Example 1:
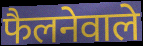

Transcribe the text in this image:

फैलनेवाले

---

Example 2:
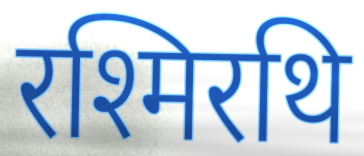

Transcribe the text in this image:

रश्मिरथि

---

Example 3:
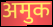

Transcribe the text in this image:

अमुक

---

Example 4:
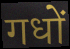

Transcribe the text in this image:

गधों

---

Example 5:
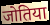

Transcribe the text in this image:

जोतिया